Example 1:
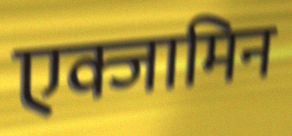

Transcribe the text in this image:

एक्जामिन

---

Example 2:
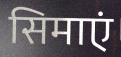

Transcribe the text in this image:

सिमाएं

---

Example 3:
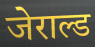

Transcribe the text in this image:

जेराल्ड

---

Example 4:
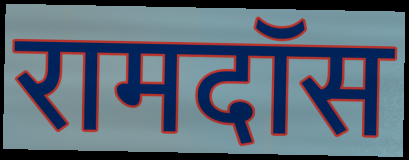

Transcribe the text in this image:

रामदॉस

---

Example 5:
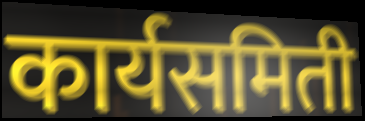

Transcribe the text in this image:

कार्यसमिती